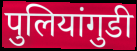
पुलियांगुडी